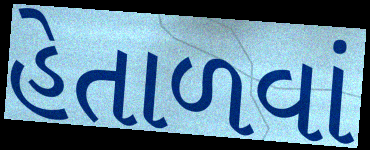
હેતાળવાં